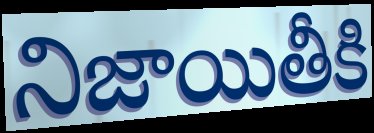
నిజాయితీకి